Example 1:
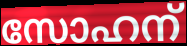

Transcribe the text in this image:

സോഹന്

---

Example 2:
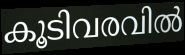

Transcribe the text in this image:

കൂടിവരവിൽ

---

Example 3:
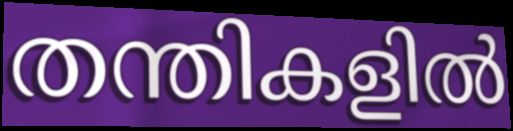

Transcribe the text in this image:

തന്തികളിൽ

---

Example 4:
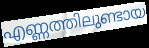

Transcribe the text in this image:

എണ്ണത്തിലുണ്ടായ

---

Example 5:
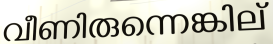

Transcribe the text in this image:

വീണിരുന്നെങ്കില്